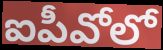
ఐపీవోలో